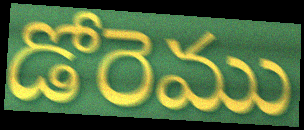
డోరెము